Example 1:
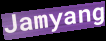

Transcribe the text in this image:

Jamyang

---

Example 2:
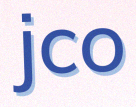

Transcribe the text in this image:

jco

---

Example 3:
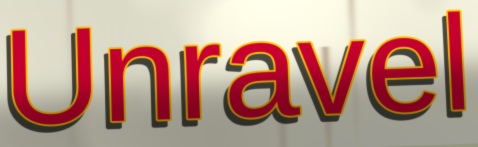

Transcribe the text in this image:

Unravel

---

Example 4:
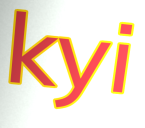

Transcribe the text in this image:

kyi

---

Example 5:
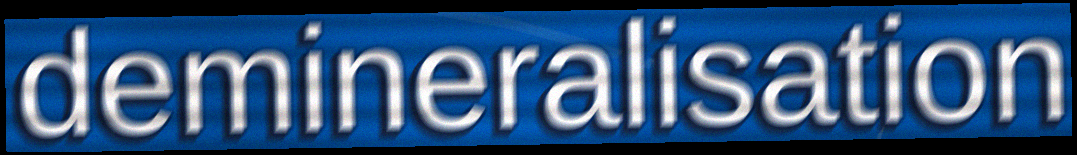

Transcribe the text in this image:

demineralisation